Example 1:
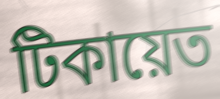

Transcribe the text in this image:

টিকায়েত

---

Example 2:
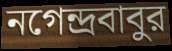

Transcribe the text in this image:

নগেন্দ্রবাবুর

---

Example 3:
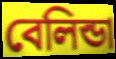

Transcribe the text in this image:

বেলিন্ডা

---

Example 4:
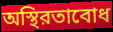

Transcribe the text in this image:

অস্থিরতাবোধ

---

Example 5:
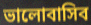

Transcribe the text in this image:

ভালোবাসিব